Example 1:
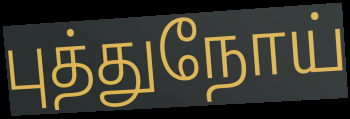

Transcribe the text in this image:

புத்துநோய்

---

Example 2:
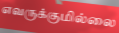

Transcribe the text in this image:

எவருக்குமில்லை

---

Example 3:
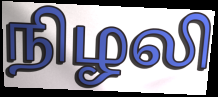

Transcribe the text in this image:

நிழலி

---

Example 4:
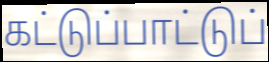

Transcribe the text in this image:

கட்டுப்பாட்டுப்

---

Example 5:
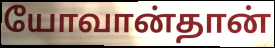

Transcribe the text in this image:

யோவான்தான்